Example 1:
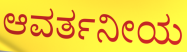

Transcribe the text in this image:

ಆವರ್ತನೀಯ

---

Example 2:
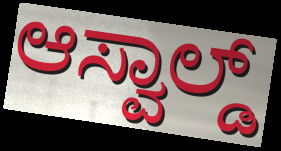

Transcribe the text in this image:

ಆಸ್ವಾಲ್ಡ್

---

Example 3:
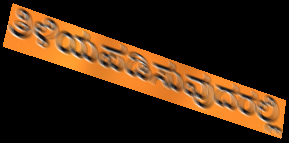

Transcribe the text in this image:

ತಿಳಿಯಪಡಿಸುವುದರಲ್ಲಿ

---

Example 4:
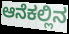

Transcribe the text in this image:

ಆನೆಕಲ್ಲಿನ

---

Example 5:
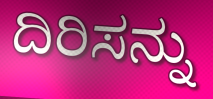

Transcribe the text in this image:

ದಿರಿಸನ್ನು